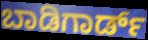
ಬಾಡಿಗಾರ್ಡ್